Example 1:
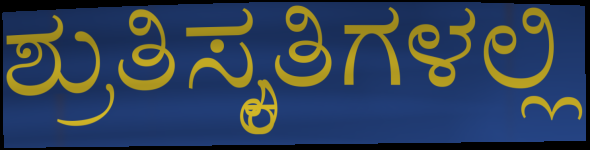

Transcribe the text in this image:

ಶ್ರುತಿಸ್ಕೃತಿಗಳಲ್ಲಿ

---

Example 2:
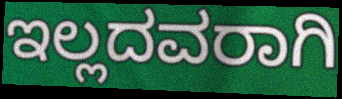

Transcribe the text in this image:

ಇಲ್ಲದವರಾಗಿ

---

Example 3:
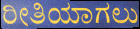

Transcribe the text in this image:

ರೀತಿಯಾಗಲು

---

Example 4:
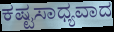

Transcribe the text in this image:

ಕಷ್ಟಸಾಧ್ಯವಾದ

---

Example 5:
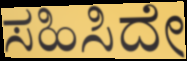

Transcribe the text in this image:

ಸಹಿಸಿದೇ